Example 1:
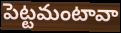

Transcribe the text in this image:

పెట్టమంటావా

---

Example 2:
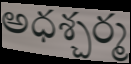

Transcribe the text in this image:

అధశ్చర్మ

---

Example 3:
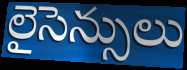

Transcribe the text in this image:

లైసెన్సులు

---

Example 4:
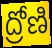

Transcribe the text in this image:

ద్రోణి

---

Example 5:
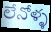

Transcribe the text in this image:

లేనోళ్ళ